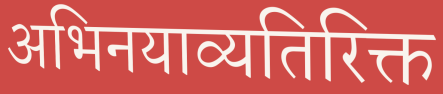
अभिनयाव्यतिरिक्त